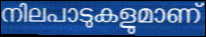
നിലപാടുകളുമാണ്